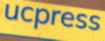
ucpress